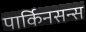
पार्किनसन्स